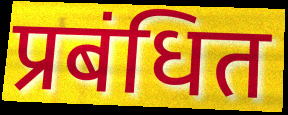
प्रबंधित